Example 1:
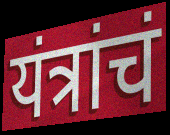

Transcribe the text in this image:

यंत्रांचं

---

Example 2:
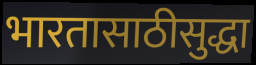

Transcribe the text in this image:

भारतासाठीसुद्धा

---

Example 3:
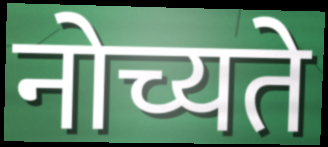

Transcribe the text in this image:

नोच्यते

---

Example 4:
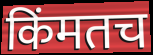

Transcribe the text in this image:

किंमतच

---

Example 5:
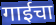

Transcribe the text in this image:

गाईचा